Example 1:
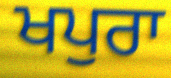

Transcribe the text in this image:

ਖਪੁਰਾ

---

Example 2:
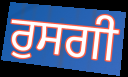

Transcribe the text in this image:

ਰੁਸਗੀ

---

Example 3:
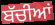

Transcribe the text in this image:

ਬੱਚੀਆਂ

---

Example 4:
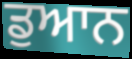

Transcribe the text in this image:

ਡੁਆਨ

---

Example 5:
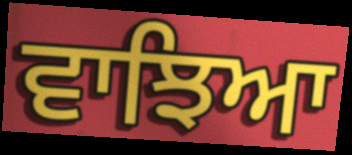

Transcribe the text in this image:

ਵਾਝਿਆ